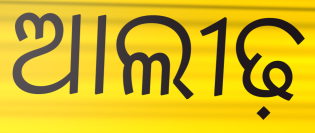
ଆଲୀଢ଼